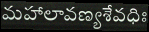
మహాలావణ్యశేవధిః